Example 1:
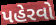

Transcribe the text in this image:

પહેરવો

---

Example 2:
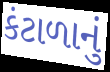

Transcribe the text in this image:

કંટાળાનું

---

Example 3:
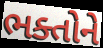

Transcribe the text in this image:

ભક્તોને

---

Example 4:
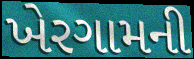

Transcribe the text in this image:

ખેરગામની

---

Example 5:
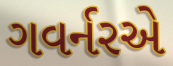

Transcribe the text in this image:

ગવર્નરએ